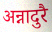
अन्नादुरै